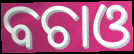
ବଚାଓ